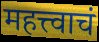
महत्त्वाचं